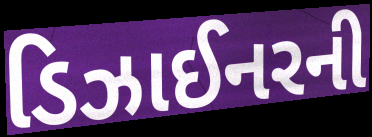
ડિઝાઈનરની